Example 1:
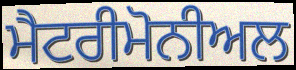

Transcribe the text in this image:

ਮੈਟਰੀਮੋਨੀਅਲ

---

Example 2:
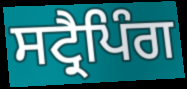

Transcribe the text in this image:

ਸਟ੍ਰੈਪਿੰਗ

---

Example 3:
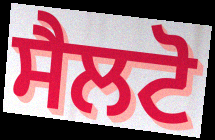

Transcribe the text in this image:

ਸੈਲਟੋ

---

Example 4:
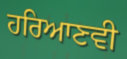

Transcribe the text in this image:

ਹਰਿਆਣਵੀ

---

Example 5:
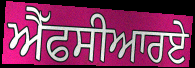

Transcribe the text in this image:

ਐੱਫਸੀਆਰਏ